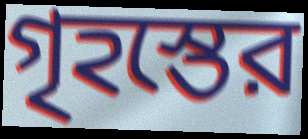
গৃহস্তের